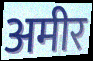
अमीर